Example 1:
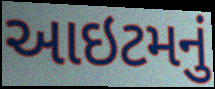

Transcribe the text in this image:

આઇટમનું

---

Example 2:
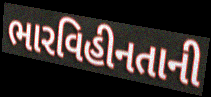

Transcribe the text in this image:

ભારવિહીનતાની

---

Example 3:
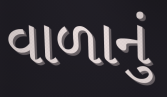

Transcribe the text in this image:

વાળાનું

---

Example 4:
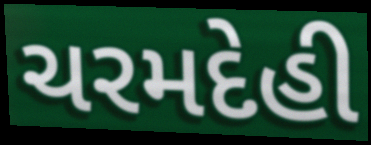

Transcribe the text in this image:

ચરમદેહી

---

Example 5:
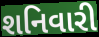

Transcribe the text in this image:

શનિવારી